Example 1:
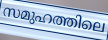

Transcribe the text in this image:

സമുഹത്തിലെ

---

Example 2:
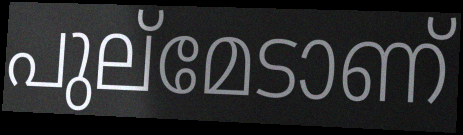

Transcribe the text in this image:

പുല്മേടാണ്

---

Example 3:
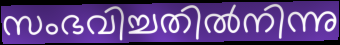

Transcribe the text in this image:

സംഭവിച്ചതിൽനിന്നു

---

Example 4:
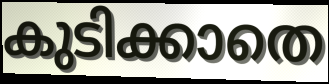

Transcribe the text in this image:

കുടിക്കാതെ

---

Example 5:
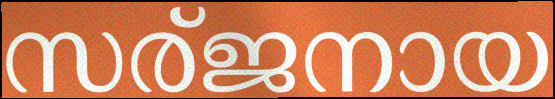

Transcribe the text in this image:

സര്ജനായ